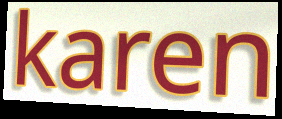
karen